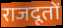
राजदूतों